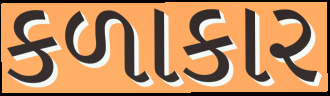
કળાકાર